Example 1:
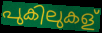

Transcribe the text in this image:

പുകിലുകള്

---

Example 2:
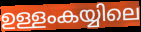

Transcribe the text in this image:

ഉള്ളംകയ്യിലെ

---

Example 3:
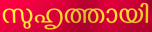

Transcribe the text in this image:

സുഹൃത്തായി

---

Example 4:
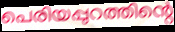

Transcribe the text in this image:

പെരിയപ്പുറത്തിന്റെ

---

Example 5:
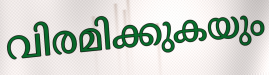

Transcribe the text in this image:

വിരമിക്കുകയും